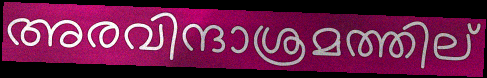
അരവിന്ദാശ്രമത്തില്